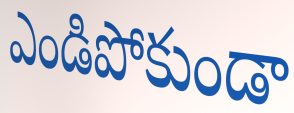
ఎండిపోకుండా